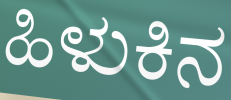
ಹಿಳುಕಿನ